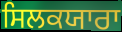
ਸਿਲਕਯਾਰਾ